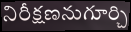
నిరీక్షణనుగూర్చి